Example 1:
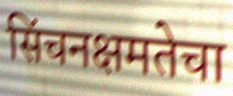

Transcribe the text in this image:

सिंचनक्षमतेचा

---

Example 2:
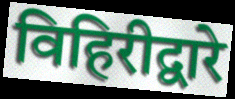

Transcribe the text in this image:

विहिरीद्वारे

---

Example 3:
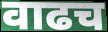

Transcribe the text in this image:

वाढच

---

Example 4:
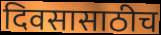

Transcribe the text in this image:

दिवसासाठीच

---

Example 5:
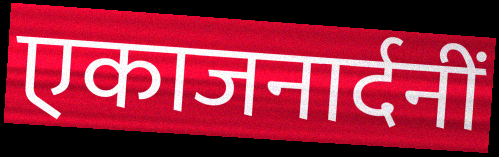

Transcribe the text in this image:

एकाजनार्दनीं